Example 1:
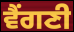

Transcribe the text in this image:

ਵੈਂਗਣੀ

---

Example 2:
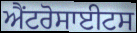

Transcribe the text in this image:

ਐਂਟਰੋਸਾਈਟਸ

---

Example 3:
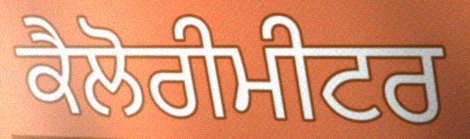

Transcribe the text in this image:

ਕੈਲੋਰੀਮੀਟਰ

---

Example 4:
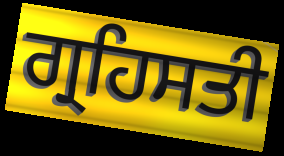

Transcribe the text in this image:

ਗ੍ਰਹਿਸਤੀ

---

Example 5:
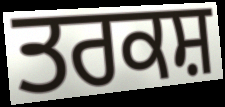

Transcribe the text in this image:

ਤਰਕਸ਼